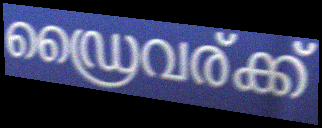
ഡ്രൈവര്ക്ക്